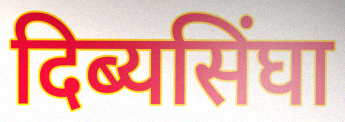
दिब्यसिंघा